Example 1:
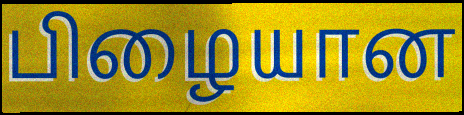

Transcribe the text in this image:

பிழையான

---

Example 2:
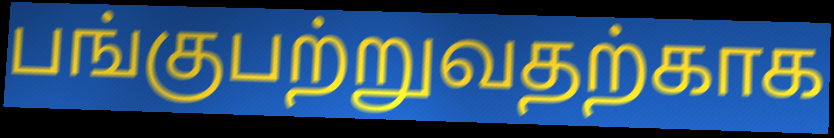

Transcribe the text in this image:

பங்குபற்றுவதற்காக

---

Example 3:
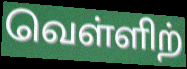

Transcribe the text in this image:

வெள்ளிற்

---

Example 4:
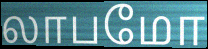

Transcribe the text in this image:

லாபமோ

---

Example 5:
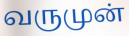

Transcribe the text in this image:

வருமுன்